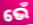
ଭେଁ